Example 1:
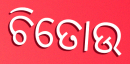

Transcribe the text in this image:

ଚିତୋଉ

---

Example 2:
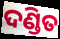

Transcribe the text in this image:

ଦଣ୍ଡିତ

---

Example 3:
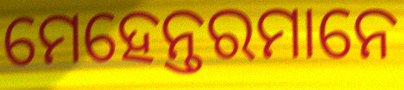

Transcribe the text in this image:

ମେହେନ୍ତରମାନେ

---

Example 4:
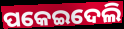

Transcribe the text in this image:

ପକେଇଦେଲି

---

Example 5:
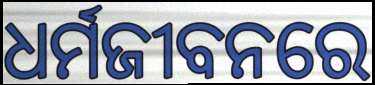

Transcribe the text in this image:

ଧର୍ମଜୀବନରେ